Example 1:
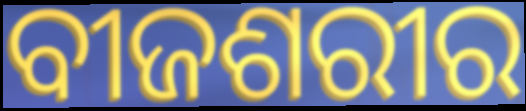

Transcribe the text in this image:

ବୀଜଶରୀର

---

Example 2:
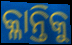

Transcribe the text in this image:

କ୍ଳାନ୍ତିକୁ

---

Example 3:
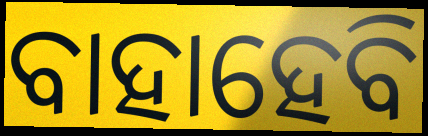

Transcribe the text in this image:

ବାହାହେବି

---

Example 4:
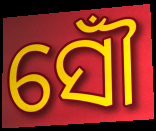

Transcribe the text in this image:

ସୌଁ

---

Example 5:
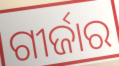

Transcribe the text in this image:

ଗୀର୍ଜାର